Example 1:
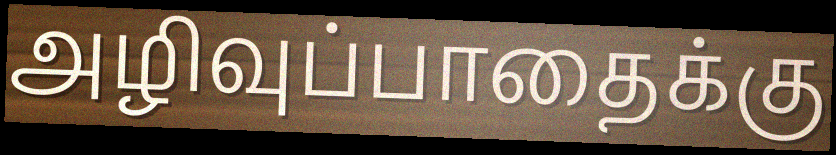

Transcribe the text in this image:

அழிவுப்பாதைக்கு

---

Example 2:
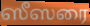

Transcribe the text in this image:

ஸீஸரை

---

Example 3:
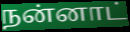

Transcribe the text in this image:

நன்னாட்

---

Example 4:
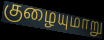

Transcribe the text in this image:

குழையுமாறு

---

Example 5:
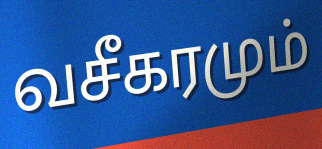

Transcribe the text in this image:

வசீகரமும்